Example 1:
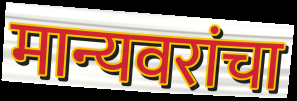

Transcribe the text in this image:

मान्यवरांचा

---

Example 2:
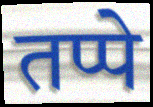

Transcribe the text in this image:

तप्पे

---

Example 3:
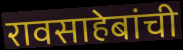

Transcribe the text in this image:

रावसाहेबांची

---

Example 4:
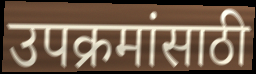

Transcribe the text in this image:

उपक्रमांसाठी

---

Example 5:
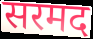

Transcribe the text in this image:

सरमद